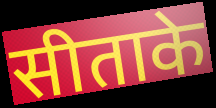
सीताके